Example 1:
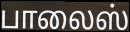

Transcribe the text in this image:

பாலைஸ்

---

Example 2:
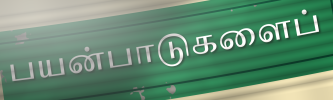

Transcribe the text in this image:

பயன்பாடுகளைப்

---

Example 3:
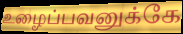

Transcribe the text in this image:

உழைப்பவனுக்கே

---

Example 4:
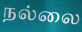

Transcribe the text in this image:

நல்லை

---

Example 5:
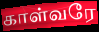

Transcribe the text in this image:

காள்வரே